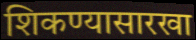
शिकण्यासारखा